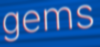
gems